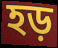
হড়